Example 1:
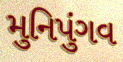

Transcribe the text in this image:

મુનિપુંગવ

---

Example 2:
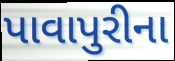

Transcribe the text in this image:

પાવાપુરીના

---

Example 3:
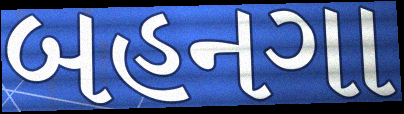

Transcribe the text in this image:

બહનગા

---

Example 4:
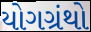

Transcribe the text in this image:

યોગગ્રંથો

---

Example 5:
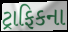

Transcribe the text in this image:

ટ્રાફિકના